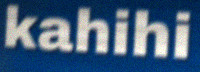
kahihi